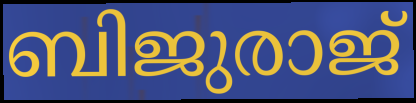
ബിജുരാജ്